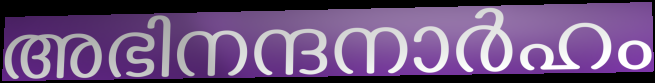
അഭിനന്ദനാർഹം